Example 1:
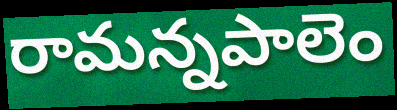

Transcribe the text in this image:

రామన్నపాలెం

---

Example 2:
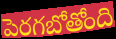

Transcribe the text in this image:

పెరగబోతోంది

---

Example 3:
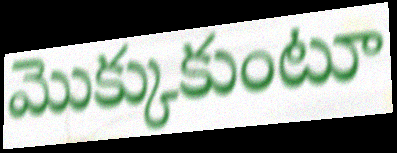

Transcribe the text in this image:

మొక్కుకుంటూ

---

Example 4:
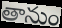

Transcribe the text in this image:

తానుం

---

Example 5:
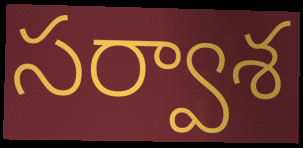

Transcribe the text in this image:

సర్వాశ